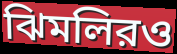
ঝিমলিরও